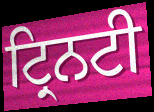
ਟ੍ਰਿਨਟੀ